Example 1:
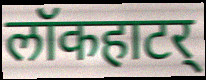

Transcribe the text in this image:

लॉकहाटर्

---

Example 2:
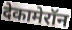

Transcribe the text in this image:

देकामेरॉन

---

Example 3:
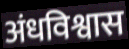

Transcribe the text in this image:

अंधविश्वास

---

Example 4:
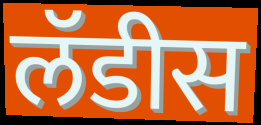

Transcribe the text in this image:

लॅडीस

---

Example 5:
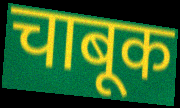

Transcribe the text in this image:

चाबूक